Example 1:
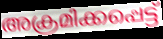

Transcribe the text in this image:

അക്രമിക്കപ്പെട്ട്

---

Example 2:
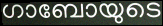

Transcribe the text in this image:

ഗാബോയുടെ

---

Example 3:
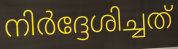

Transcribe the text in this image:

നിർദ്ദേശിച്ചത്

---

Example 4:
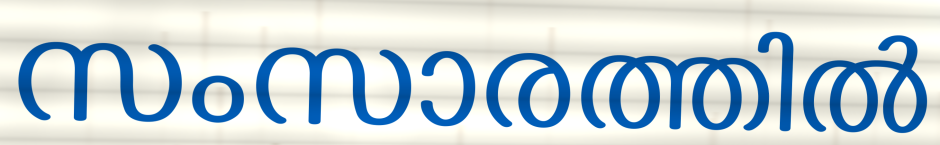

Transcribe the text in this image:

സംസാരത്തിൽ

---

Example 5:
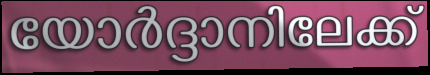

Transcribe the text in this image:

യോർദ്ദാനിലേക്ക്